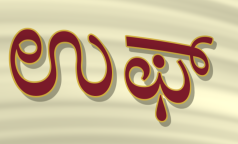
ಉಫ್